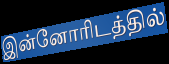
இன்னோரிடத்தில்